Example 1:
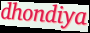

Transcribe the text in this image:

dhondiya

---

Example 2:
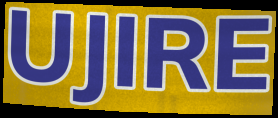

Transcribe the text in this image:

UJIRE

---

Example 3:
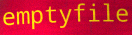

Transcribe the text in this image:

emptyfile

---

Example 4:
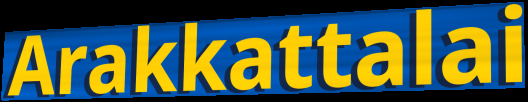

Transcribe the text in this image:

Arakkattalai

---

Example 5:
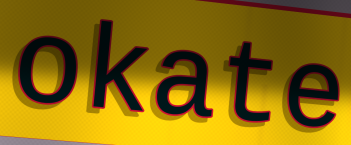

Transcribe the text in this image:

okate